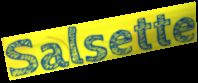
Salsette